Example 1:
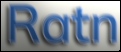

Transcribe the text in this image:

Ratn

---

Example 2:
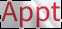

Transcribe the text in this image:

Appt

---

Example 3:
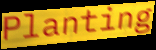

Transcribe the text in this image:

Planting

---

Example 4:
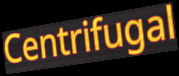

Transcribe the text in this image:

Centrifugal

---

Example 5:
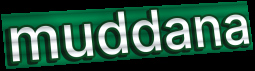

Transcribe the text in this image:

muddana